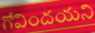
గోవిందయని